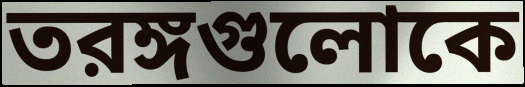
তরঙ্গগুলোকে